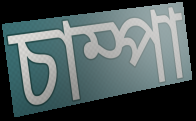
চাম্পা